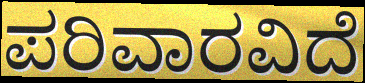
ಪರಿವಾರವಿದೆ